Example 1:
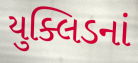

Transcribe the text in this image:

યુક્લિડનાં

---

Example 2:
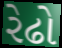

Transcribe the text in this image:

રેઢો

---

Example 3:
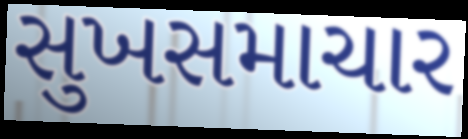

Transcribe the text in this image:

સુખસમાચાર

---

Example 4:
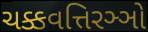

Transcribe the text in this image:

ચક્કવત્તિરઞ્ઞો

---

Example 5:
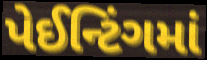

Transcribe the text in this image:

પેઈન્ટિંગમાં